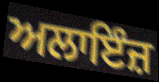
ਅਲਾਇੰਜ਼